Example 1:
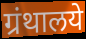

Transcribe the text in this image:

ग्रंथालये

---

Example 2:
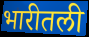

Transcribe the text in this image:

भारीतली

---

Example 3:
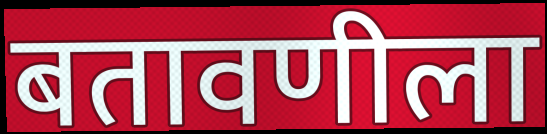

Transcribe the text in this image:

बतावणीला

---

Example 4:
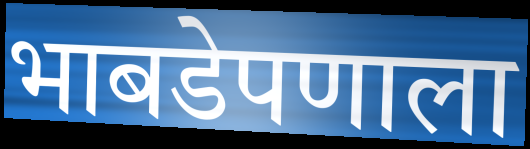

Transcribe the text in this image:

भाबडेपणाला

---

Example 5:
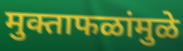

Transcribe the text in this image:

मुक्ताफळांमुळे